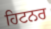
ਹਿਟਨਰ